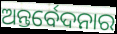
ଅନ୍ତର୍ବେଦନାର